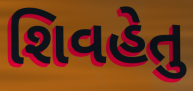
શિવહેતુ